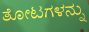
ತೋಟಗಳನ್ನು